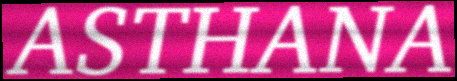
ASTHANA